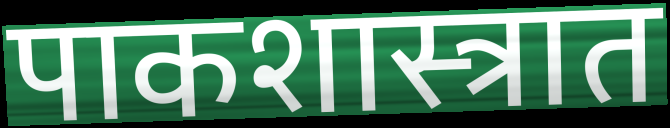
पाकशास्त्रात